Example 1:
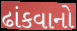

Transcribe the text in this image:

ઢાંકવાનો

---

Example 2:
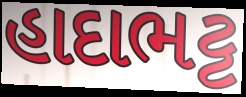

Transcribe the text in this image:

હાદાભટ્ટ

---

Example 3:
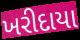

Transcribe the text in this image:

ખરીદાયા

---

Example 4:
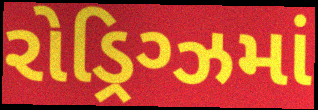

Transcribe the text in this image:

રોડ્રિગ્ઝમાં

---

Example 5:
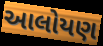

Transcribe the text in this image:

આલોયણ